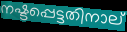
നഷ്ടപ്പെട്ടതിനാല്